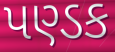
પણ્ડક